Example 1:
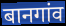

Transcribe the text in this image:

बानगांव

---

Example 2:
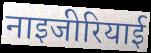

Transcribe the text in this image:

नाइजीरियाई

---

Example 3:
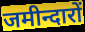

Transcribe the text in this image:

जमीन्दारों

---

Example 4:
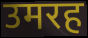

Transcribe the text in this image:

उमरह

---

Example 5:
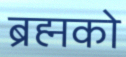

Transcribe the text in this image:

ब्रह्मको